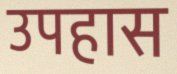
उपहास